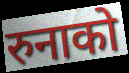
रुनाको